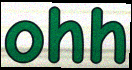
ohh